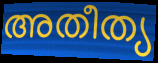
അതീത്യ